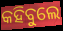
କହିବୁଲେ